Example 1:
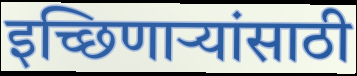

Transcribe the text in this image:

इच्छिणाऱ्यांसाठी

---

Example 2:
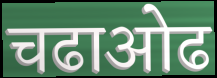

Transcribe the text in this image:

चढाओढ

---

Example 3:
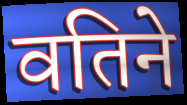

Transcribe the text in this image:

वतिने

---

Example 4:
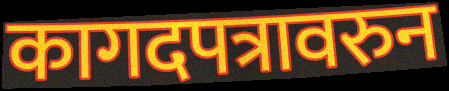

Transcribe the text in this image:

कागदपत्रावरुन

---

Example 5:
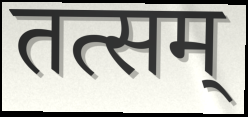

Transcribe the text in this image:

तत्सम्